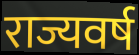
राज्यवर्ष